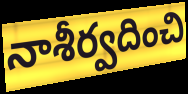
నాశీర్వదించి